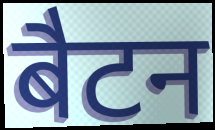
बैटन